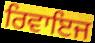
ਰਿਵਾਇਜ